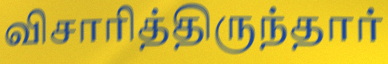
விசாரித்திருந்தார்